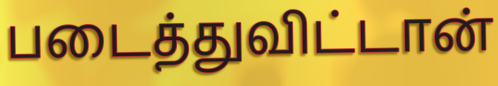
படைத்துவிட்டான்